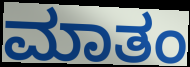
ಮಾತಂ